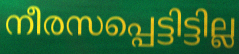
നീരസപ്പെട്ടിട്ടില്ല